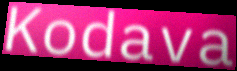
Kodava